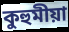
কুহুমীয়া